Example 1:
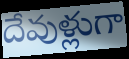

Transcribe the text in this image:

దేవుళ్లుగా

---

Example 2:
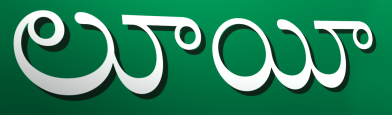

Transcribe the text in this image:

లూయీ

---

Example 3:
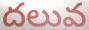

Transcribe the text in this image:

దలువ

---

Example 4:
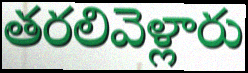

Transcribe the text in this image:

తరలివెళ్లారు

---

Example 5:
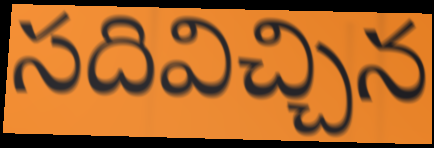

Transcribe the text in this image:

సదివిచ్చిన